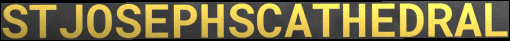
STJOSEPHSCATHEDRAL